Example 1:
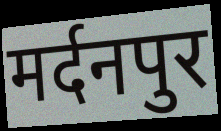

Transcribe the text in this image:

मर्दनपुर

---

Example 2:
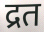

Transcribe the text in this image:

द्रत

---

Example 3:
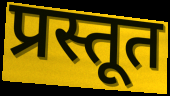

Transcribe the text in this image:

प्रस्तूत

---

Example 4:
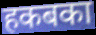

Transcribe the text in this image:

हकबका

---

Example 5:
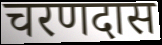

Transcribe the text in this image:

चरणदास